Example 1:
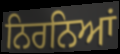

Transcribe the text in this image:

ਨਿਰਨਿਆਂ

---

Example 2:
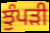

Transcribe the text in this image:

ਝੁੰਪੜੀ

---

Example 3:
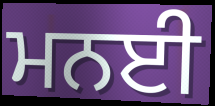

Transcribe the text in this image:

ਮਨਈ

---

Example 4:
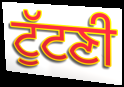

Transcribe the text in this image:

ਟੁੱਟਣੀ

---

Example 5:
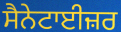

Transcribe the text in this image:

ਸੈਨੇਟਾਈਜ਼ਰ